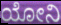
ಯೋನಿ